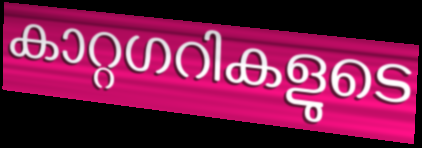
കാറ്റഗറികളുടെ